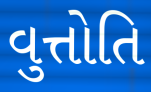
વુત્તોતિ